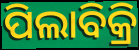
ପିଲାବିକ୍ରି